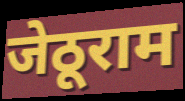
जेठूराम